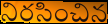
నిరసించిన